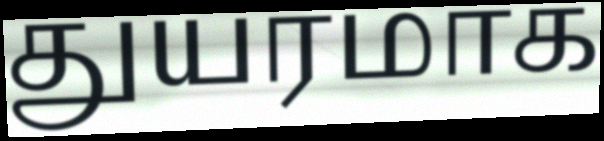
துயரமாக